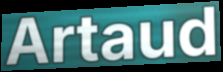
Artaud